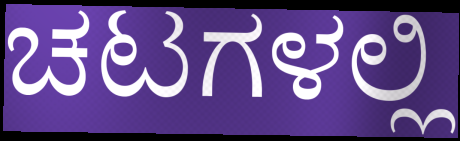
ಚಟಗಳಲ್ಲಿ